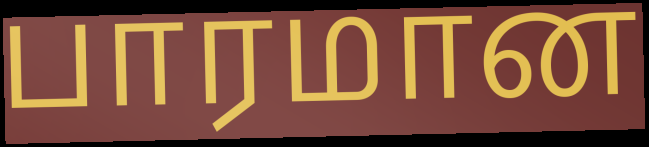
பாரமான